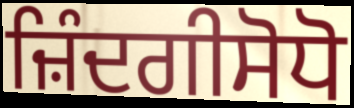
ਜ਼ਿੰਦਗੀਸੋਧੋ